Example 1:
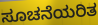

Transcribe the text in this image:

ಸೂಚನೆಯರಿತ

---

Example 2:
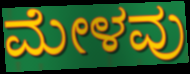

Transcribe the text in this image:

ಮೇಳವು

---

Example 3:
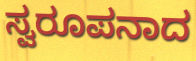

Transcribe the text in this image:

ಸ್ವರೂಪನಾದ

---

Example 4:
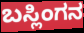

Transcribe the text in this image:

ಬಸ್ಲಿಂಗನ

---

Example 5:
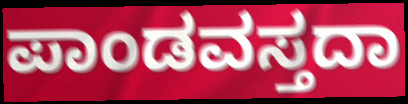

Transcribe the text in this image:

ಪಾಂಡವಸ್ತದಾ